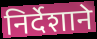
निर्देशाने